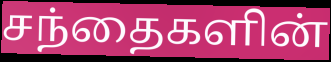
சந்தைகளின்